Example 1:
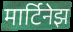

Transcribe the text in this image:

मार्टिनेझ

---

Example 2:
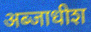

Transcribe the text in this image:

अब्जाधीश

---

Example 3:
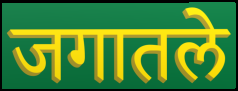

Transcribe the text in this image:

जगातले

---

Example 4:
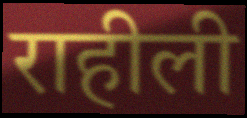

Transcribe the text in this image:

राहीली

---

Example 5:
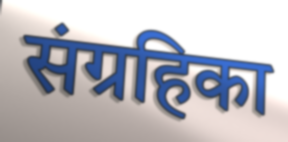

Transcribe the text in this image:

संग्रहिका